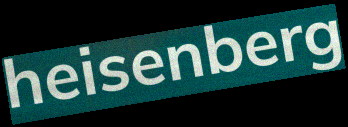
heisenberg